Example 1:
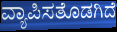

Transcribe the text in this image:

ವ್ಯಾಪಿಸತೊಡಗಿದೆ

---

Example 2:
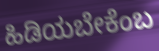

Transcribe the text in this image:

ಹಿಡಿಯಬೇಕೆಂಬ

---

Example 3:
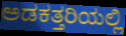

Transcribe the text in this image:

ಅಡಕತ್ತರಿಯಲ್ಲಿ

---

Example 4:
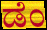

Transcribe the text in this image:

ಡೆಂ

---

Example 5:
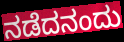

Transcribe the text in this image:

ನಡೆದನಂದು